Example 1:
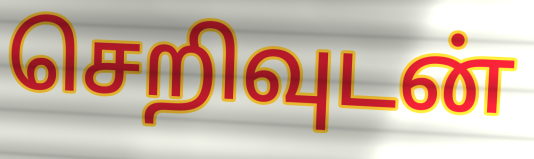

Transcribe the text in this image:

செறிவுடன்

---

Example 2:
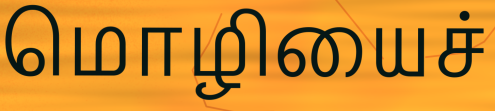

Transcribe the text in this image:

மொழியைச்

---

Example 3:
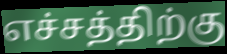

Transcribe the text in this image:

எச்சத்திற்கு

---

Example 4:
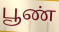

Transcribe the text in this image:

பூண்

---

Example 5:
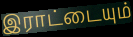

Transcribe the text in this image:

இராட்டையும்